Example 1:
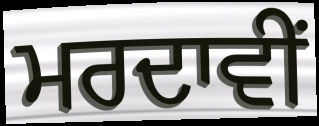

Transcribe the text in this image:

ਮਰਦਾਵੀਂ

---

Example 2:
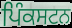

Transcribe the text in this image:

ਪਿੰਕਸਟਨ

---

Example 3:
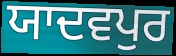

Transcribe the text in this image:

ਯਾਦਵਪੁਰ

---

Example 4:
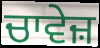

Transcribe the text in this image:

ਚਾਵੇਜ਼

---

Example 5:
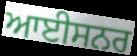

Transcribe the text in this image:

ਆਈਸਨਰ